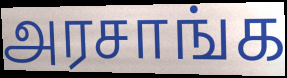
அரசாங்க